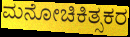
ಮನೋಚಿಕಿತ್ಸಕರ